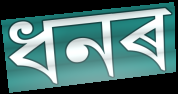
ধনৰ